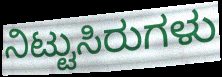
ನಿಟ್ಟುಸಿರುಗಳು